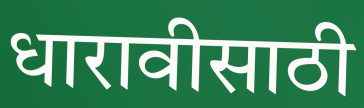
धारावीसाठी